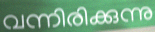
വന്നിരിക്കുന്നു